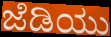
ಜೆಡಿಯು